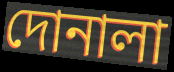
দোনালা